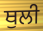
ਥੁਲੀ